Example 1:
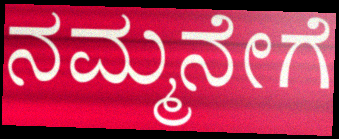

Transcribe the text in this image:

ನಮ್ಮನೇಗೆ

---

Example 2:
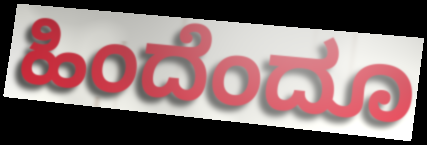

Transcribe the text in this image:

ಹಿಂದೆಂದೂ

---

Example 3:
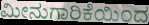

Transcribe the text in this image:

ಮೀನುಗಾರಿಕೆಯಿಂದ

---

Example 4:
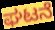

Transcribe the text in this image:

ಘಟನೆ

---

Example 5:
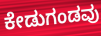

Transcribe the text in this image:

ಕೇಡುಗಂಡವು